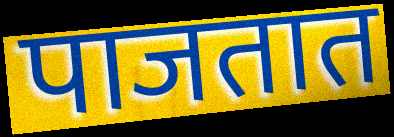
पाजतात